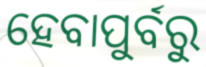
ହେବାପୁର୍ବରୁ